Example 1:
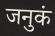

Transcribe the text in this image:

जनुकं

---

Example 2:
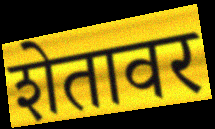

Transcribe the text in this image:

शेतावर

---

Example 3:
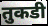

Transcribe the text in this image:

तुकडी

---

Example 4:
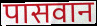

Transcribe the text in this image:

पासवान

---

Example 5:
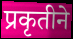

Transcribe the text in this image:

प्रकृतीने